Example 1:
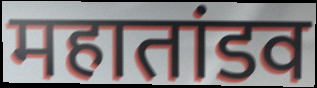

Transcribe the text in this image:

महातांडव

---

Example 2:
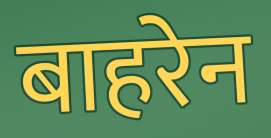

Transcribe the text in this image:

बाहरेन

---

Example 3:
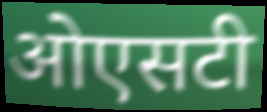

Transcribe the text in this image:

ओएसटी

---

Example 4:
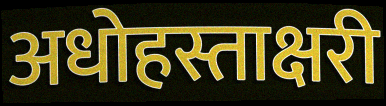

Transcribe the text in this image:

अधोहस्ताक्षरी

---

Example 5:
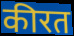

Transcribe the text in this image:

कीरत